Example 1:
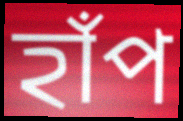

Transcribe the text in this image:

হাঁপ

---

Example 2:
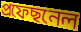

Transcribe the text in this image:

প্ৰফেছনেল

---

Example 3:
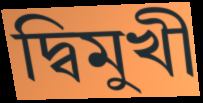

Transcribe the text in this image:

দ্বিমুখী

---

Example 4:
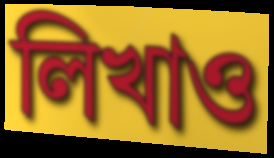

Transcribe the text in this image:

লিখাও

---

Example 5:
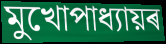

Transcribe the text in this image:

মুখোপাধ্যায়ৰ